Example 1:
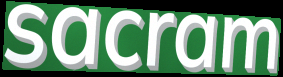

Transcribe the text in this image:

sacram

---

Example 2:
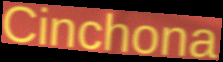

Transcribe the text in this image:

Cinchona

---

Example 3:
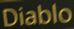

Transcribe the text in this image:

Diablo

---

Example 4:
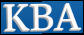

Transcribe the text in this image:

KBA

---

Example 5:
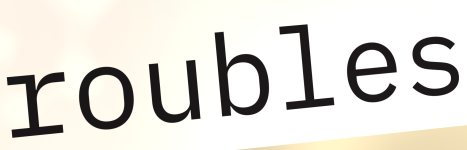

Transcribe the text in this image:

roubles